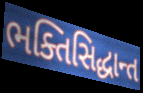
ભક્તિસિદ્ધાન્ત